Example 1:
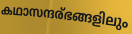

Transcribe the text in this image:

കഥാസന്ദര്ഭങ്ങളിലും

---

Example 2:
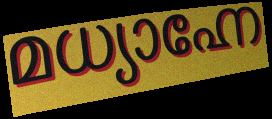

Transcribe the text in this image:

മധ്യാഹ്നേ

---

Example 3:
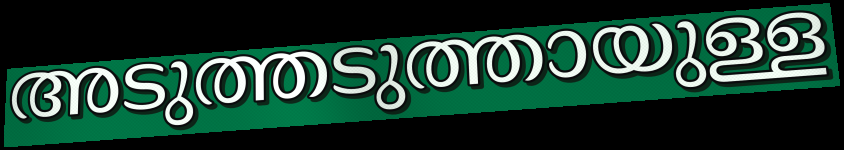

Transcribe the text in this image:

അടുത്തടുത്തായുള്ള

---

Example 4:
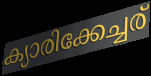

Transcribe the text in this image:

ക്യാരിക്കേച്ചര്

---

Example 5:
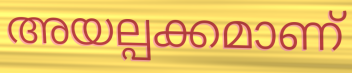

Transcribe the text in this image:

അയല്പക്കമാണ്